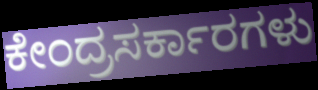
ಕೇಂದ್ರಸರ್ಕಾರಗಳು